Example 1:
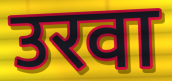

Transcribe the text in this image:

उरवा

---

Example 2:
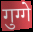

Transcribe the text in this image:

गुग्गे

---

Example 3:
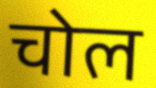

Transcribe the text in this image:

चोल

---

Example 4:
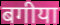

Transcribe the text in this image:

बगीया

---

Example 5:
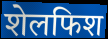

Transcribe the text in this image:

शेलफिश